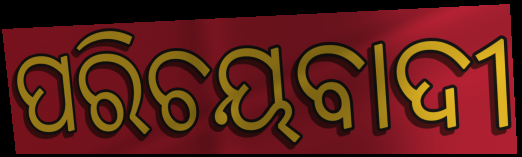
ପରିଚୟବାଦୀ